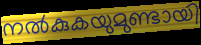
നൽകുകയുമുണ്ടായി